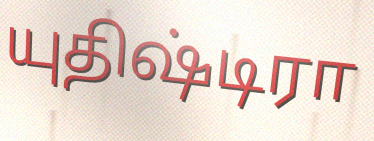
யுதிஷ்டிரா